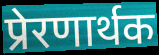
प्रेरणार्थक